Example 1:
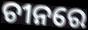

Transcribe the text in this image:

ଚୀନରେ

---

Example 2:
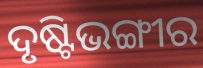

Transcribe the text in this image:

ଦୃଷ୍ଟିଭଙ୍ଗୀର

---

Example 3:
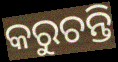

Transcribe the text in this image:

କରୁଚନ୍ତି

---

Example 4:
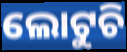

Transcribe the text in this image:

ଲୋଟୁଚି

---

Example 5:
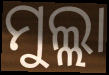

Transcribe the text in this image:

ମୁଲ୍ଲା